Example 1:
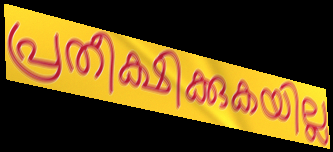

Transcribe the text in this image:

പ്രതീക്ഷിക്കുകയില്ല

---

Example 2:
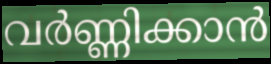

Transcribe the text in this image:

വർണ്ണിക്കാൻ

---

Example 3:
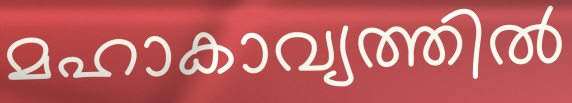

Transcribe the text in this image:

മഹാകാവ്യത്തിൽ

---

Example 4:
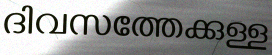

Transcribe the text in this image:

ദിവസത്തേക്കുള്ള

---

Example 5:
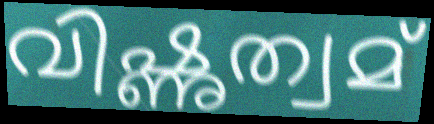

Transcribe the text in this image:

വിഷ്ണുത്വമ്